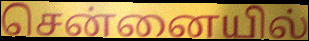
சென்னையில்